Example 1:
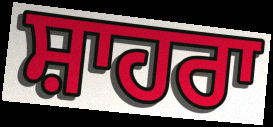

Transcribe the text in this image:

ਸ਼ਾਹਰਾ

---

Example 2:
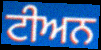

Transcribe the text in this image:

ਟੀਅਨ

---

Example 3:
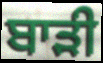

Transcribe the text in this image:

ਬਾੜੀ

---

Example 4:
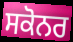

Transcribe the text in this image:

ਸਕੋਨਰ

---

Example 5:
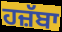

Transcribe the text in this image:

ਹਜ਼ੱਬਾ